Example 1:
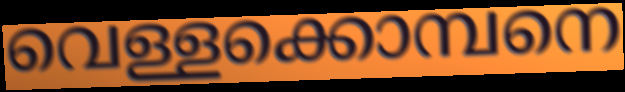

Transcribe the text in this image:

വെള്ളക്കൊമ്പനെ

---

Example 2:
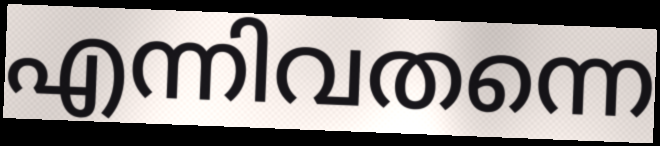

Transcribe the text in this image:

എന്നിവതന്നെ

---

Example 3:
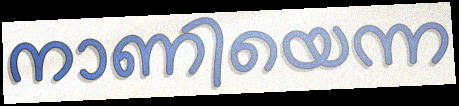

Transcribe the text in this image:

നാണിയെന്ന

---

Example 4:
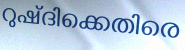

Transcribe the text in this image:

റുഷ്ദിക്കെതിരെ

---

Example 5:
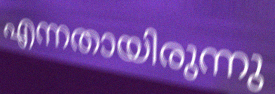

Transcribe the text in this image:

എന്നതായിരുന്നു